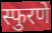
स्फुरणे